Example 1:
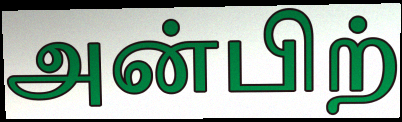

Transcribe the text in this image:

அன்பிற்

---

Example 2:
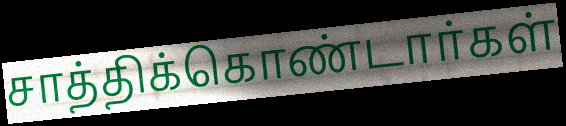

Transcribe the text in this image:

சாத்திக்கொண்டார்கள்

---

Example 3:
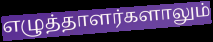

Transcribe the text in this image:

எழுத்தாளர்களாலும்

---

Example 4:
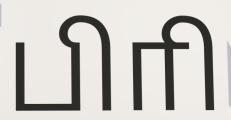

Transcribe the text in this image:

பிரி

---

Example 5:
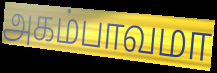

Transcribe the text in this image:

அகம்பாவமா